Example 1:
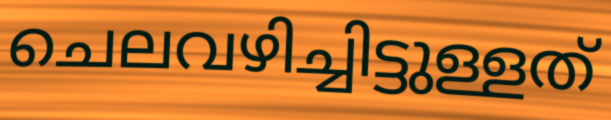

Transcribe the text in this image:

ചെലവഴിച്ചിട്ടുള്ളത്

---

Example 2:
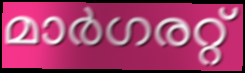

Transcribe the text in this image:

മാർഗരറ്റ്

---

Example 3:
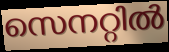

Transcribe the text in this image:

സെനറ്റിൽ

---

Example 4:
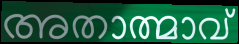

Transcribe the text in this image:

അതാത്മാവ്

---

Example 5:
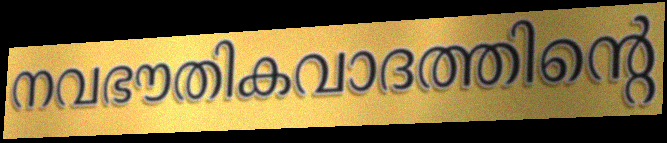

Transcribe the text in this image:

നവഭൗതികവാദത്തിന്റെ